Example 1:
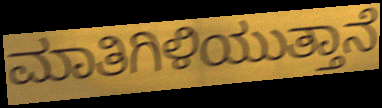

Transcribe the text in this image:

ಮಾತಿಗಿಳಿಯುತ್ತಾನೆ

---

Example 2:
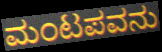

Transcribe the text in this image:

ಮಂಟಪವನು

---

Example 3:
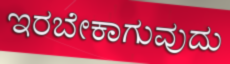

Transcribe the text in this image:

ಇರಬೇಕಾಗುವುದು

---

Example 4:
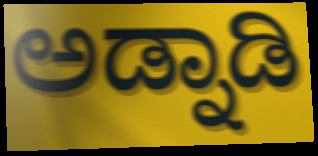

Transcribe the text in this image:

ಅಡ್ನಾಡಿ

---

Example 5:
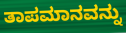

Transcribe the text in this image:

ತಾಪಮಾನವನ್ನು